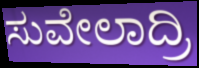
ಸುವೇಲಾದ್ರಿ